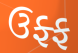
ઉફ્ફ